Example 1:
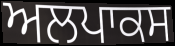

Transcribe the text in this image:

ਅਲਪਾਕਸ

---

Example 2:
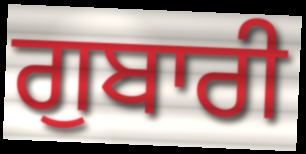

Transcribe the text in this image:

ਗੁਬਾਰੀ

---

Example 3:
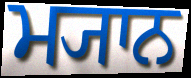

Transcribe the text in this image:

ਮ੍ਯਾਨ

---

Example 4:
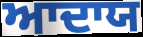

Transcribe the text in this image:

ਆਦਾਯ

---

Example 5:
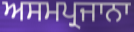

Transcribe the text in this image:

ਅਸਮਪ੍ਰਜਾਨਾ